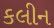
કલીન